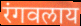
रंगवलाय